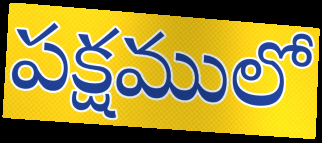
పక్షములో